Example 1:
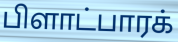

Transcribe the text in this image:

பிளாட்பாரக்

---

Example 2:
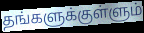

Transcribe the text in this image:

தங்களுக்குள்ளும்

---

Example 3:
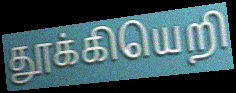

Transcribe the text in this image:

தூக்கியெறி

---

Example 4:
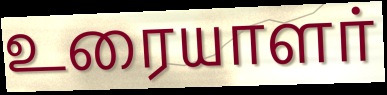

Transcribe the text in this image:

உரையாளர்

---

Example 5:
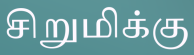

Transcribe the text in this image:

சிறுமிக்கு